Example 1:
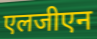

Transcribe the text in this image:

एलजीएन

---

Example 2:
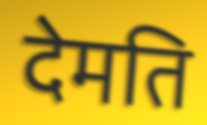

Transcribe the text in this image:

देमति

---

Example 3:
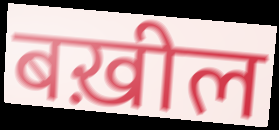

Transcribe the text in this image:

बख़ील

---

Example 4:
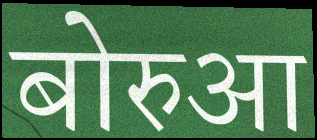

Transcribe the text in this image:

बोरुआ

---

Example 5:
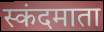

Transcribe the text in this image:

स्‍कंदमाता